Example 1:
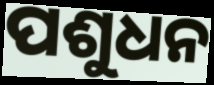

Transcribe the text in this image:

ପଶୁଧନ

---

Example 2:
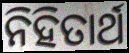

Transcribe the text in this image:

ନିହିତାର୍ଥ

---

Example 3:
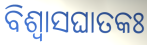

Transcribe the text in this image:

ବିଶ୍ୱାସଘାତକଃ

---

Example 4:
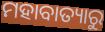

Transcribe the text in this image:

ମହାବାତ୍ୟାରୁ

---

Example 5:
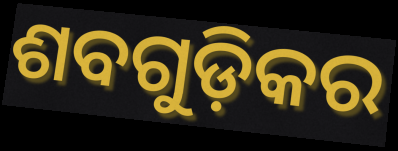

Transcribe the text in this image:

ଶବଗୁଡ଼ିକର